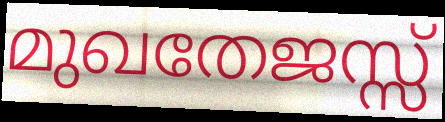
മുഖതേജസ്സ്